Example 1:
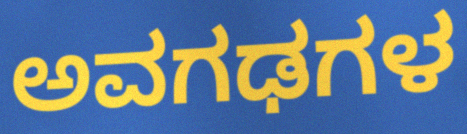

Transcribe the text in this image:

ಅವಗಢಗಳ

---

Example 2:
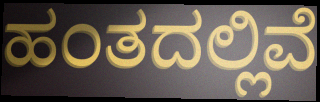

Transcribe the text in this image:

ಹಂತದಲ್ಲಿವೆ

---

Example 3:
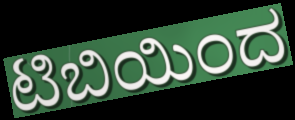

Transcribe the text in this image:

ಟಿಬಿಯಿಂದ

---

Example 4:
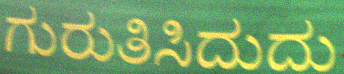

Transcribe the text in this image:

ಗುರುತಿಸಿದುದು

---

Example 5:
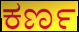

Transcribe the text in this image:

ಕರ್ಣ